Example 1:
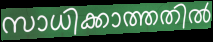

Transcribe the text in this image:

സാധിക്കാത്തതിൽ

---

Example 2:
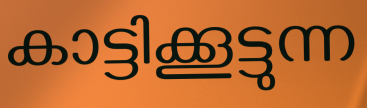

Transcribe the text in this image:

കാട്ടിക്കൂട്ടുന്ന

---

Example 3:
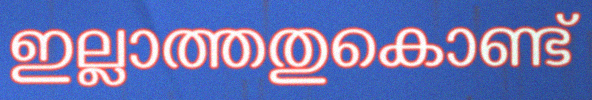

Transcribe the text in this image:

ഇല്ലാത്തതുകൊണ്ട്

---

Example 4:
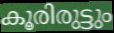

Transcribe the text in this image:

കൂരിരുട്ടും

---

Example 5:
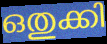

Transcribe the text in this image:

ഒതുക്കി